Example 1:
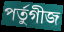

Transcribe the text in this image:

পৰ্তুগীজ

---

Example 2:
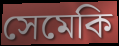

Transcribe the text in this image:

সেমেকি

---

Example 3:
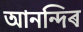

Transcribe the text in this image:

আনন্দিৰ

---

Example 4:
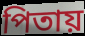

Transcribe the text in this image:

পিতায়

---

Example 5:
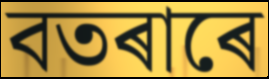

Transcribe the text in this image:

বতৰাৰে